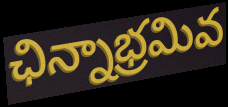
ఛిన్నాభ్రమివ